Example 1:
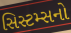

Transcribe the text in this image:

સિસ્ટમ્સનો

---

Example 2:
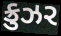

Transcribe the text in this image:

ક્રુઝર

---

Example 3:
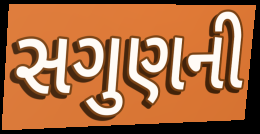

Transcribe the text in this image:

સગુણની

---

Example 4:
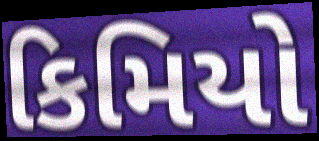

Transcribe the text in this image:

કિમિયો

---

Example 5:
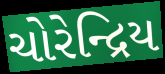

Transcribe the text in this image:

ચોરેન્દ્રિય